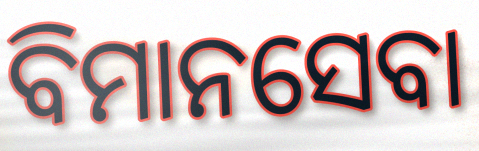
ବିମାନସେବା